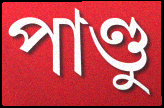
পাণ্ডু